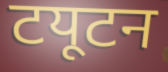
टयूटन